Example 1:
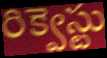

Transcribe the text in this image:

రిక్వెస్టు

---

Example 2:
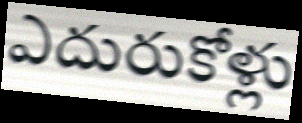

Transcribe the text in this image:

ఎదురుకోళ్లు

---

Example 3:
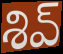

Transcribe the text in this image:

శివ్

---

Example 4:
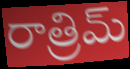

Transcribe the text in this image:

రాత్రిమ్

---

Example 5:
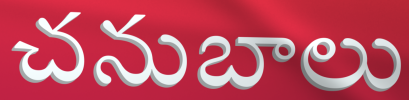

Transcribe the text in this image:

చనుబాలు